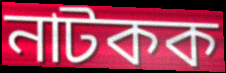
নাটকক